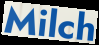
Milch